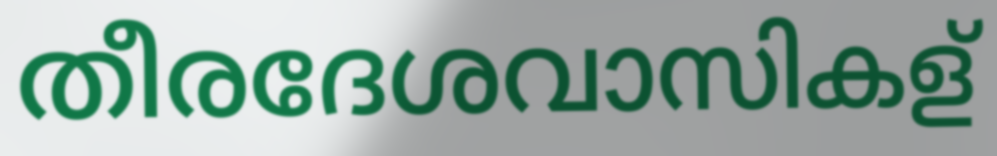
തീരദേശവാസികള്